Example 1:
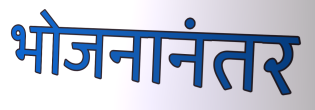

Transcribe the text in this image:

भोजनानंतर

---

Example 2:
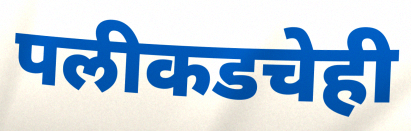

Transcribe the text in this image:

पलीकडचेही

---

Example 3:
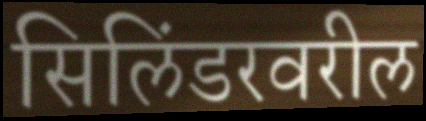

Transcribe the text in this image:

सिलिंडरवरील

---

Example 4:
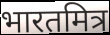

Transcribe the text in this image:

भारतमित्र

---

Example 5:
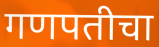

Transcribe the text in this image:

गणपतीचा